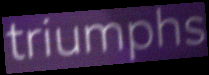
triumphs